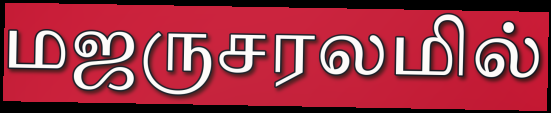
மஜருசரலமில்